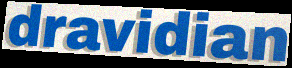
dravidian